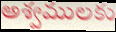
అశ్వములకు